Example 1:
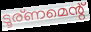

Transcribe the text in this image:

ടൂര്ണമെന്റ്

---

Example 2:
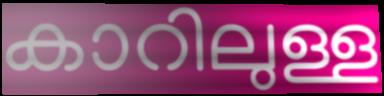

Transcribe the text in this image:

കാറിലുള്ള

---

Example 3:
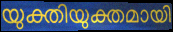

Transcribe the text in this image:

യുക്തിയുക്തമായി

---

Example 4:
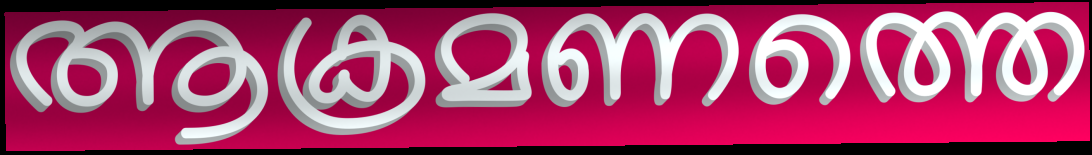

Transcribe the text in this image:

ആക്രമണത്തെ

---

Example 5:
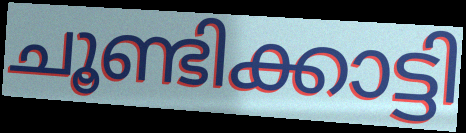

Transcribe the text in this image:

ചൂണ്ടിക്കാട്ടി